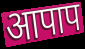
आपाप